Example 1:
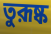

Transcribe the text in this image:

তুরূষ্ক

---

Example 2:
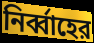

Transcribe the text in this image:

নির্ব্বাহের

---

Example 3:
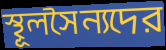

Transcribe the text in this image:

স্থূলসৈন্যদের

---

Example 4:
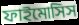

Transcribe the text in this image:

ফাইমোসিস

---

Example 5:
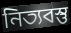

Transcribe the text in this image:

নিত্যবস্তু